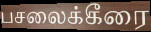
பசலைக்கீரை